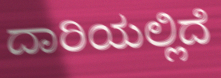
ದಾರಿಯಲ್ಲಿದೆ